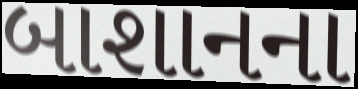
બાશાનના